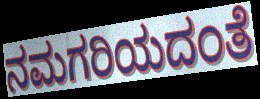
ನಮಗರಿಯದಂತೆ